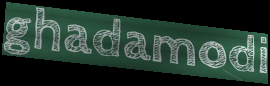
ghadamodi